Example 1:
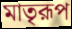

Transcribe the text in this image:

মাতৃরূপ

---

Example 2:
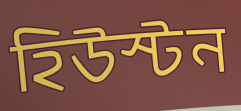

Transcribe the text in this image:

হিউস্টন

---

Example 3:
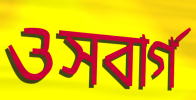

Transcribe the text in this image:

ওসবার্গ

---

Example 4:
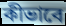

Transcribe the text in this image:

কীভাবে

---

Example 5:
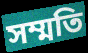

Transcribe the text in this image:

সম্মতি